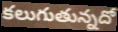
కలుగుతున్నదో